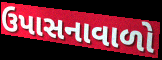
ઉપાસનાવાળો